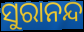
ସୁରାନନ୍ଦ